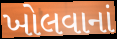
ખોલવાનાં